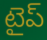
టైప్